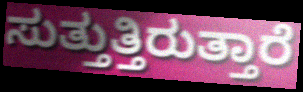
ಸುತ್ತುತ್ತಿರುತ್ತಾರೆ